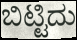
ಬಿಟ್ಟಿದು